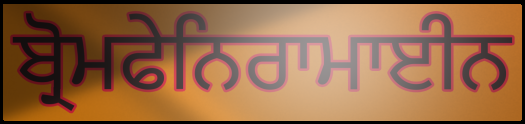
ਬ੍ਰੋਮਫੇਨਿਰਾਮਾਈਨ